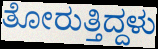
ತೋರುತ್ತಿದ್ದಳು